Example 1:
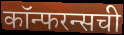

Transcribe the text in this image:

कॉन्फरन्सची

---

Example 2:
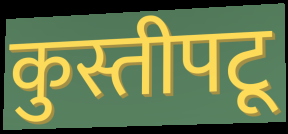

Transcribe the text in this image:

कुस्तीपटू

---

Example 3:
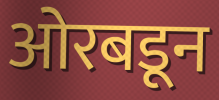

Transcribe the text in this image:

ओरबडून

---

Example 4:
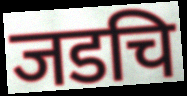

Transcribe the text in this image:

जडचि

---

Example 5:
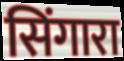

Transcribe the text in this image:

सिंगारा